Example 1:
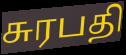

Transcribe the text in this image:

சுரபதி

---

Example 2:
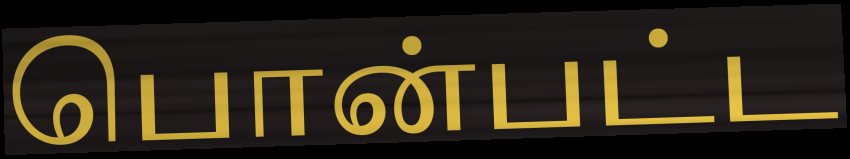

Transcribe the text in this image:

பொன்பட்ட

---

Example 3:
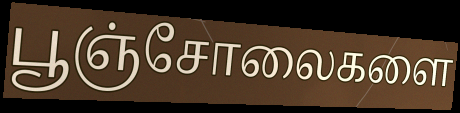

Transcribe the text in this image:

பூஞ்சோலைகளை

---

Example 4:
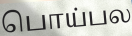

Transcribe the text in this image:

பொய்பல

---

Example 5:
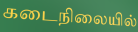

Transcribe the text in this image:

கடைநிலையில்